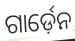
ଗାର୍ଡ଼େନ